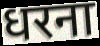
धरना